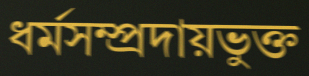
ধর্মসম্প্রদায়ভুক্ত